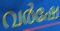
വർഷേ